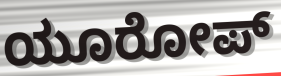
ಯೂರೋಪ್